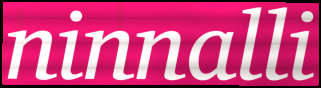
ninnalli